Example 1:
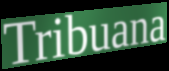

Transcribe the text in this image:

Tribuana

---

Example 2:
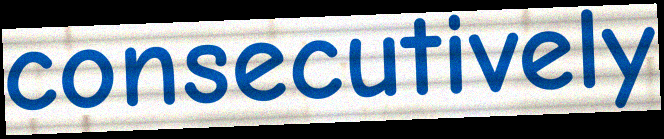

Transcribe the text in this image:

consecutively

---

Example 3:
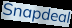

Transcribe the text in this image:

Snapdeal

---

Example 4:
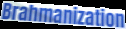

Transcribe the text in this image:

Brahmanization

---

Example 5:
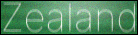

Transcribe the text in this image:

Zealand